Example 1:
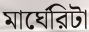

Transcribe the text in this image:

মার্ঘেরিটা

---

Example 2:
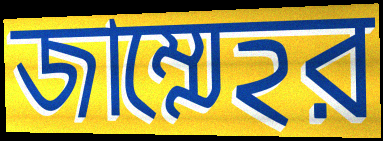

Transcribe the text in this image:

জাম্মেহর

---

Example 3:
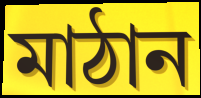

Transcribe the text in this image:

মাঠান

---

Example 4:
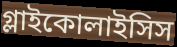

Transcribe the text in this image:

গ্লাইকোলাইসিস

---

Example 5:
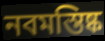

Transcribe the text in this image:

নবমস্তিষ্ক